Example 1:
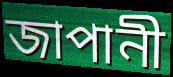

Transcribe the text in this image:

জাপানী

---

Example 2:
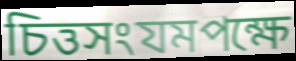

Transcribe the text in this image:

চিত্তসংযমপক্ষে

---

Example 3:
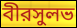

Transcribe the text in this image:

বীরসুলভ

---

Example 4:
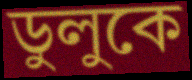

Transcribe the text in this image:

ডুলুকে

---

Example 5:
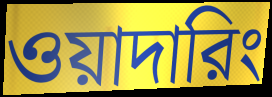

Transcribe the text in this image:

ওয়াদারিং